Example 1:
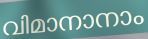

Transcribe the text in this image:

വിമാനാനാം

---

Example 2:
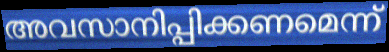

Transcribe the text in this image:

അവസാനിപ്പിക്കണമെന്ന്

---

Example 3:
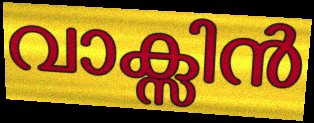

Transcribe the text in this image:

വാക്സിൻ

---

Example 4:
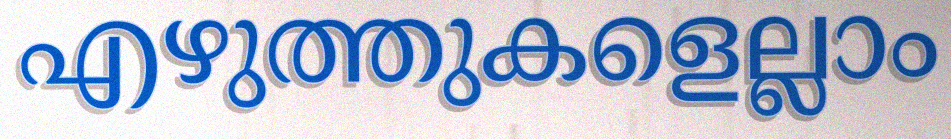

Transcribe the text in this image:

എഴുത്തുകളെല്ലാം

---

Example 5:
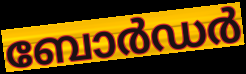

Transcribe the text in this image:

ബോർഡർ